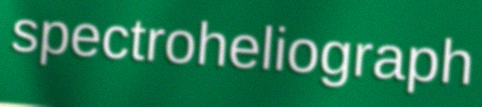
spectroheliograph